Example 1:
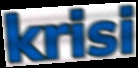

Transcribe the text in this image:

krisi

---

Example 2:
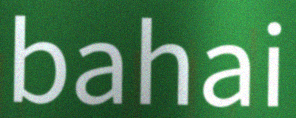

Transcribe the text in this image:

bahai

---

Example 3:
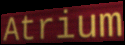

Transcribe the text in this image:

Atrium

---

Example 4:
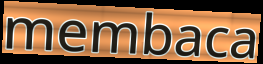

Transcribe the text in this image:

membaca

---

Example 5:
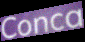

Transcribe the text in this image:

Conca